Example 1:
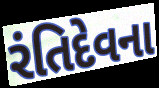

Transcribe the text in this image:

રંતિદેવના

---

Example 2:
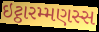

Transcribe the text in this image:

ઇટ્ઠારમ્મણસ્સ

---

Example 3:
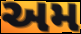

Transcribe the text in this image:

અમ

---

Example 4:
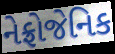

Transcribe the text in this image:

નેફ્રોજેનિક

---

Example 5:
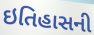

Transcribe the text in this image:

ઇતિહાસની